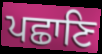
ਪਛਾਣਿ